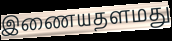
இணையதளமது